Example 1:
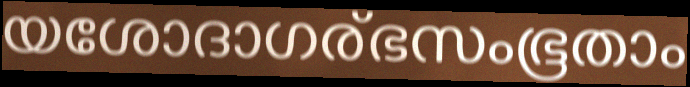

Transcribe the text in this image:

യശോദാഗര്ഭസംഭൂതാം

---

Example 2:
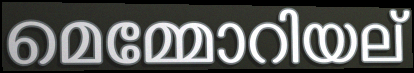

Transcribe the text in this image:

മെമ്മോറിയല്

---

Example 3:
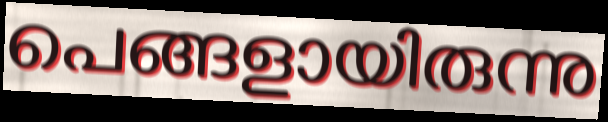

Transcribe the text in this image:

പെങ്ങളായിരുന്നു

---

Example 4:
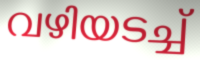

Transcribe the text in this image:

വഴിയടച്ച്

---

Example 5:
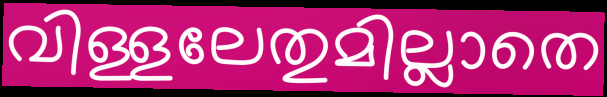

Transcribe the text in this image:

വിള്ളലേതുമില്ലാതെ